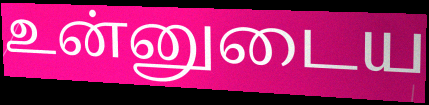
உன்னுடைய